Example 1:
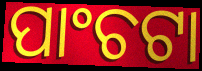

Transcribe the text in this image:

ପାଂଚଟା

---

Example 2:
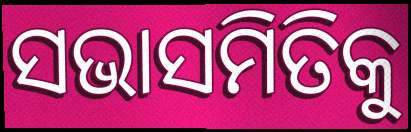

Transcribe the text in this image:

ସଭାସମିତିକୁ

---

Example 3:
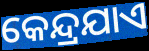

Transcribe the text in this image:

କେନ୍ଦ୍ରଯାଏ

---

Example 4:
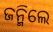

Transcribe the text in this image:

ଜନ୍ମିଲେ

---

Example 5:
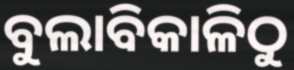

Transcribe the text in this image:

ବୁଲାବିକାଳିଠୁ